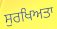
ਸੁਰਖਿਅਤਾ